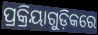
ପ୍ରକ୍ରିୟାଗୁଡ଼ିକରେ